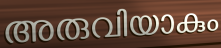
അരുവിയാകും